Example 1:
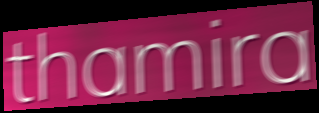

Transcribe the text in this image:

thamira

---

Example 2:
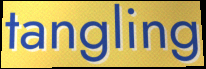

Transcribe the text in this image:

tangling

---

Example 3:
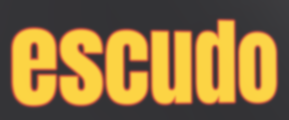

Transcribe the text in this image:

escudo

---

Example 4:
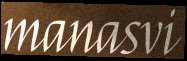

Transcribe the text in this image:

manasvi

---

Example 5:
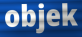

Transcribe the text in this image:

objek